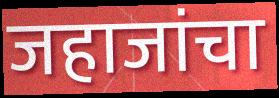
जहाजांचा